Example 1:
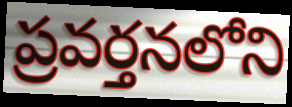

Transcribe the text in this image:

ప్రవర్తనలోని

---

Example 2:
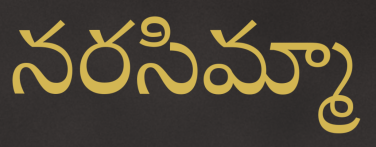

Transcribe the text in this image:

నరసిమ్మా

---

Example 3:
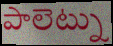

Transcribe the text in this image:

పాలెట్ను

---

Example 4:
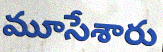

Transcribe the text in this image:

మూసేశారు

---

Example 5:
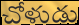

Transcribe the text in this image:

చోళుడు